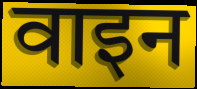
वाइन